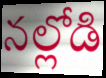
నల్లోడి